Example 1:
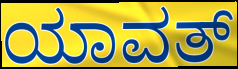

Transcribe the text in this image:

ಯಾವತ್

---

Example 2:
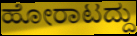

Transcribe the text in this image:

ಹೋರಾಟದ್ದು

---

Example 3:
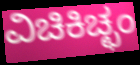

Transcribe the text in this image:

ವಿಚಿಕಿಚ್ಛಂ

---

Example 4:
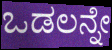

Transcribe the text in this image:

ಒಡಲನ್ನೇ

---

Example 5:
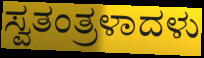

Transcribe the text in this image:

ಸ್ವತಂತ್ರಳಾದಳು